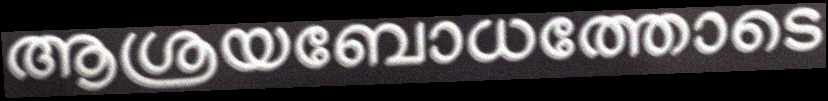
ആശ്രയബോധത്തോടെ